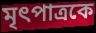
মৃৎপাত্রকে